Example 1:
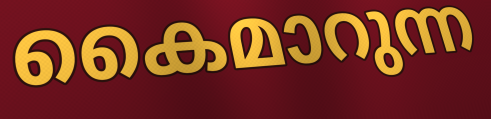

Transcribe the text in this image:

കൈമാറുന്ന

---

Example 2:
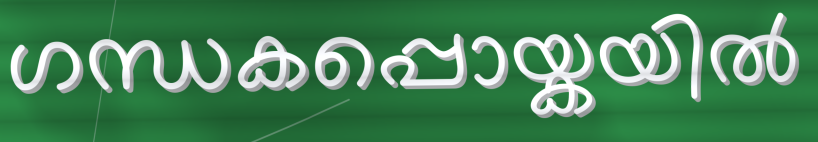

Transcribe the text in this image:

ഗന്ധകപ്പൊയ്കയിൽ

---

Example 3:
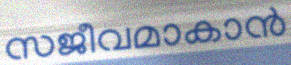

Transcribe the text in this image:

സജീവമാകാൻ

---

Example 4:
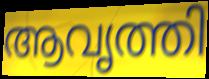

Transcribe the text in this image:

ആവൃത്തി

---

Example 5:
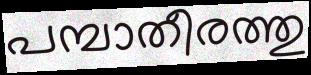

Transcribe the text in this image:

പമ്പാതീരത്തു